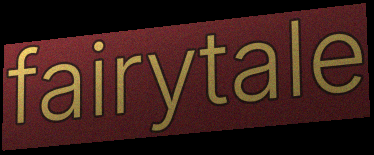
fairytale